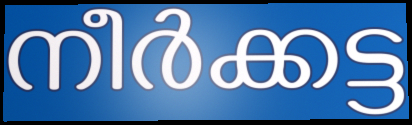
നീർക്കട്ട